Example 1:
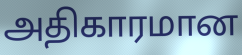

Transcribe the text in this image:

அதிகாரமான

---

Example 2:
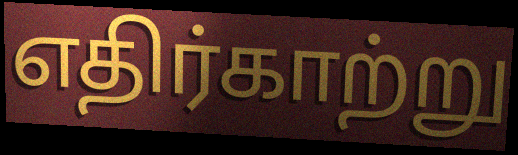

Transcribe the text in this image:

எதிர்காற்று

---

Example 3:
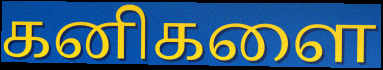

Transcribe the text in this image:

கனிகளை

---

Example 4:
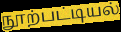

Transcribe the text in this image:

நூற்பட்டியல்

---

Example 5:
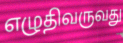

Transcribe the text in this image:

எழுதிவருவது